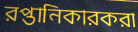
রপ্তানিকারকরা